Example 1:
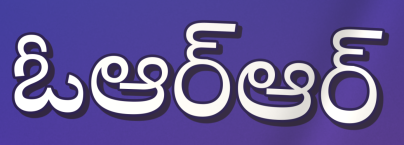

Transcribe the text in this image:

ఓఆర్ఆర్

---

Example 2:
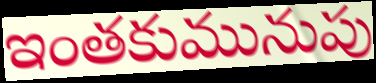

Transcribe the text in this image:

ఇంతకుమునుపు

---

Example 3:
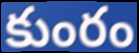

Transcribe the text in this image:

కుంరం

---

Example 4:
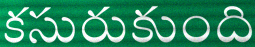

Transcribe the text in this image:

కసురుకుంది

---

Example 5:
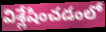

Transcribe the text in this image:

విశ్లేషించడంలో